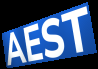
AEST